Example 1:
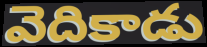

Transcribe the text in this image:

వెదికాడు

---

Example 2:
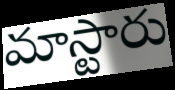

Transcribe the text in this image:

మాస్టారు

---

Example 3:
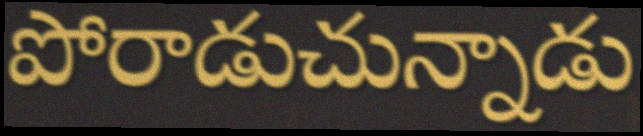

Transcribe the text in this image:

పోరాడుచున్నాడు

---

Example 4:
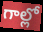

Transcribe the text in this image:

గాల్లో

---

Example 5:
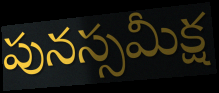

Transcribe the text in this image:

పునస్సమీక్ష